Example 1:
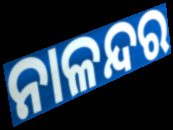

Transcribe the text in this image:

ନାଳନ୍ଦର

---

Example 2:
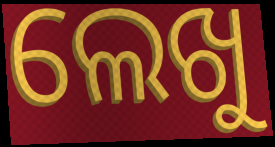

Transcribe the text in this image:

ଲେଖୁ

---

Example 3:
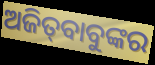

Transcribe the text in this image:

ଅଜିତ୍‍ବାବୁଙ୍କର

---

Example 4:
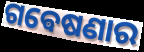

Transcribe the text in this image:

ଗଵେଷଣାର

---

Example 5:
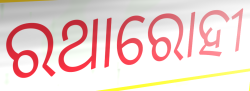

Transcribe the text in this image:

ରଥାରୋହୀ